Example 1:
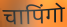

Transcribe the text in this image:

चापिंगो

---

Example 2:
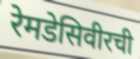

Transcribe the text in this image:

रेमडेसिवीरची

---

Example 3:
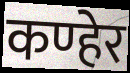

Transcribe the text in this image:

कण्हेर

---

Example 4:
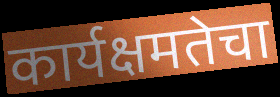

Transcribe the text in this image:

कार्यक्षमतेचा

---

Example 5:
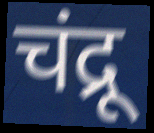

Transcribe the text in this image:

चंद्रू